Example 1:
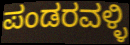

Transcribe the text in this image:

ಪಂಡರವಳ್ಳಿ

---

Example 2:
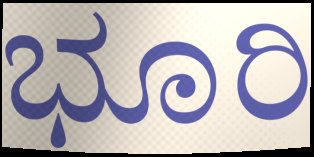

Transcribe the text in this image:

ಭೂರಿ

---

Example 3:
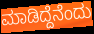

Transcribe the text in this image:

ಮಾಡಿದ್ದೆನೆಂದು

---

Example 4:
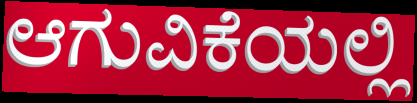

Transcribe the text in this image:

ಆಗುವಿಕೆಯಲ್ಲಿ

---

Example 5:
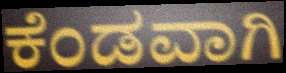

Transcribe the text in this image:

ಕೆಂಡವಾಗಿ